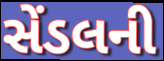
સેંડલની